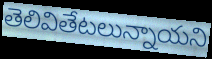
తెలివితేటలున్నాయని